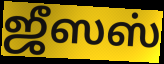
ஜீஸஸ்